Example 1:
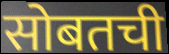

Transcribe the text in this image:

सोबतची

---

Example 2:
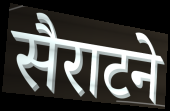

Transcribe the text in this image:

सैराटने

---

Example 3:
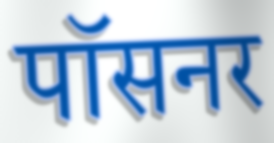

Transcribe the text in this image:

पॉसनर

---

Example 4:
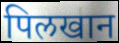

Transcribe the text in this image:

पिलखान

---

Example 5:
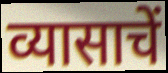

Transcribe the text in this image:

व्यासाचें